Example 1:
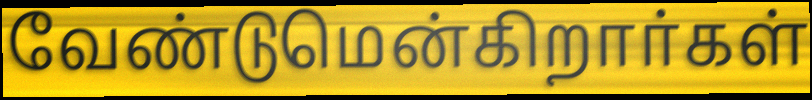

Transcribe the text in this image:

வேண்டுமென்கிறார்கள்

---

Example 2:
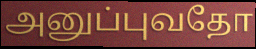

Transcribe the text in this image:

அனுப்புவதோ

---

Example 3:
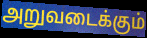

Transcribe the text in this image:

அறுவடைக்கும்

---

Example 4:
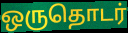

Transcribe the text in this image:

ஒருதொடர்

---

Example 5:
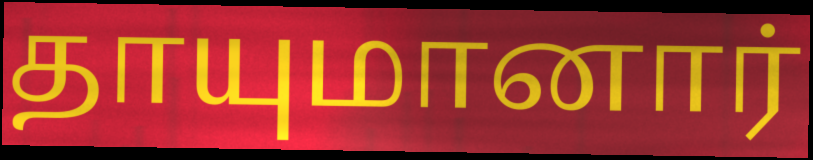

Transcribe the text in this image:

தாயுமானார்